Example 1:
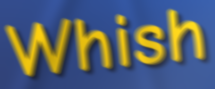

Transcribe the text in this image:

Whish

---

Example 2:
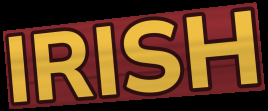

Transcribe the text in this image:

IRISH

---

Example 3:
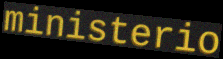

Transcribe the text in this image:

ministerio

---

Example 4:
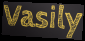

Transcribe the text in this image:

Vasily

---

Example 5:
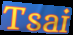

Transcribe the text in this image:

Tsai